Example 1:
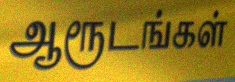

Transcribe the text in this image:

ஆரூடங்கள்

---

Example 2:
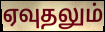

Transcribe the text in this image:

ஏவுதலும்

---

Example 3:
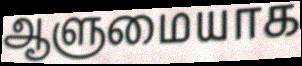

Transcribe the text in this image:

ஆளுமையாக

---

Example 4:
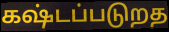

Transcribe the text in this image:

கஷ்டப்படுறத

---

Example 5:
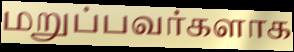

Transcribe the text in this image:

மறுப்பவர்களாக